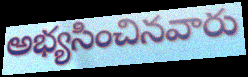
అభ్యసించినవారు